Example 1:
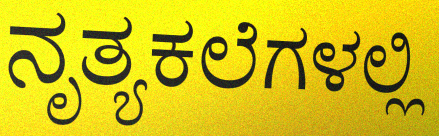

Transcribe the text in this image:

ನೃತ್ಯಕಲೆಗಳಲ್ಲಿ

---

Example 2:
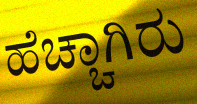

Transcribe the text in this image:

ಹೆಚ್ಚಾಗಿರು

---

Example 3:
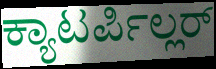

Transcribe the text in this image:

ಕ್ಯಾಟರ್ಪಿಲ್ಲರ್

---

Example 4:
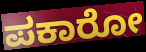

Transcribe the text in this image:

ಪಕಾರೋ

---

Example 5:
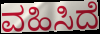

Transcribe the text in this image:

ವಹಿಸಿದೆ